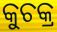
କୁଚକ୍ର